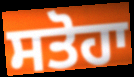
ਸਤੋਹਾ